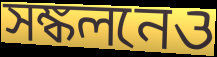
সঙ্কলনেও